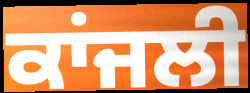
ਕਾਂਜਲੀ